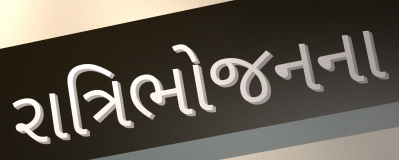
રાત્રિભોજનના